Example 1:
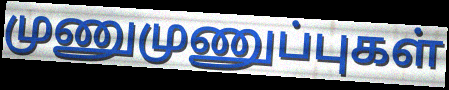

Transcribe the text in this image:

முணுமுணுப்புகள்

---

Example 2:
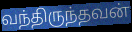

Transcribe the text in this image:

வந்திருந்தவன்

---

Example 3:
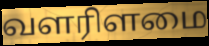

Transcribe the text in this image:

வளரிளமை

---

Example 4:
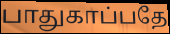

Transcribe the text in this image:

பாதுகாப்பதே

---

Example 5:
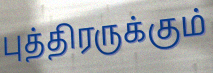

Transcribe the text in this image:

புத்திரருக்கும்